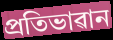
প্ৰতিভাৱান